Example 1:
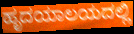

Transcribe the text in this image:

ಹೃದಯಾಲಯದಲ್ಲಿ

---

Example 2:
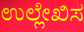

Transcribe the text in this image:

ಉಲ್ಲೇಖಿಸ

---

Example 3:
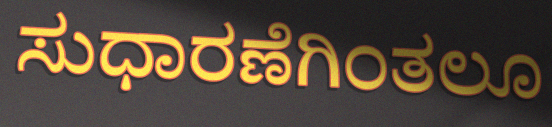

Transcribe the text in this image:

ಸುಧಾರಣೆಗಿಂತಲೂ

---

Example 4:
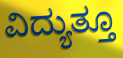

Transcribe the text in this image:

ವಿದ್ಯುತ್ತೂ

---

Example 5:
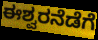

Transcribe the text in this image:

ಈಶ್ವರನೆಡೆಗೆ